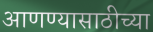
आणण्यासाठीच्या